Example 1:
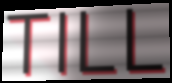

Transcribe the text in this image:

TILL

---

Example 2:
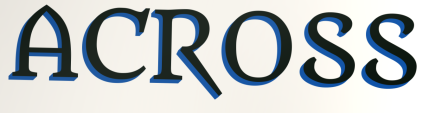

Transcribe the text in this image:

ACROSS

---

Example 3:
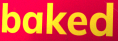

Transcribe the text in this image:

baked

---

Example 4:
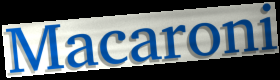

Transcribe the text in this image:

Macaroni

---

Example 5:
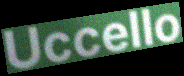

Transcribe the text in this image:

Uccello